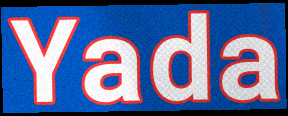
Yada